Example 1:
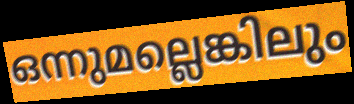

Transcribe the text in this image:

ഒന്നുമല്ലെങ്കിലും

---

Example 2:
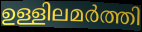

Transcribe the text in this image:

ഉള്ളിലമർത്തി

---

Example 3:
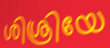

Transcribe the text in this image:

ശിശ്രിയേ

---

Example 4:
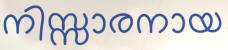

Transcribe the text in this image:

നിസ്സാരനായ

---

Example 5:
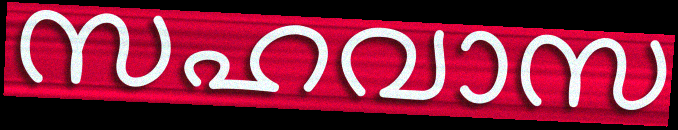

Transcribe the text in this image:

സഹവാസ